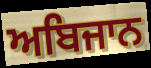
ਅਬਿਜਾਨ